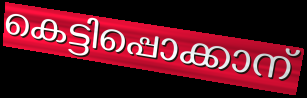
കെട്ടിപ്പൊക്കാന്